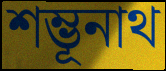
শম্ভূনাথ